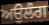
ਅਉਲੰਗ